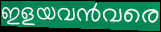
ഇളയവൻവരെ